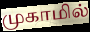
முகாமில்